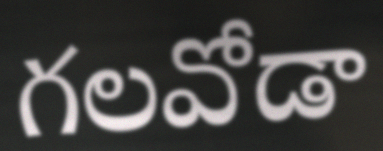
గలవోడా